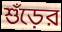
শুঁড়ের